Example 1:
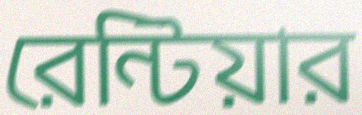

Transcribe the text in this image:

রেন্টিয়ার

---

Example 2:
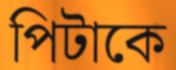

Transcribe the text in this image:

পিটাকে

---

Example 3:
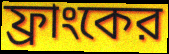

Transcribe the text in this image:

ফ্রাংকের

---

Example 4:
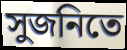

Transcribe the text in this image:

সুজনিতে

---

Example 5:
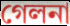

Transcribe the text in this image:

গেলনা